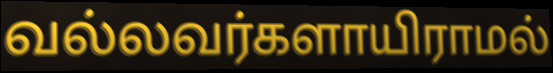
வல்லவர்களாயிராமல்